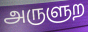
அருளுற